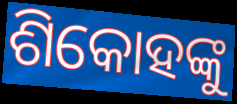
ଶିକୋହଙ୍କୁ